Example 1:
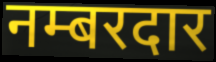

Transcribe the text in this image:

नम्बरदार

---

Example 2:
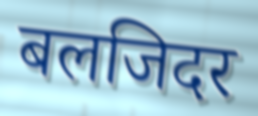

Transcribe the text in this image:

बलजिदर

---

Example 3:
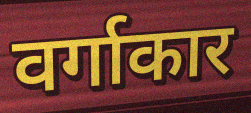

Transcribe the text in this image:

वर्गाकार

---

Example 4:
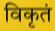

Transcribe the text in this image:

विकृतं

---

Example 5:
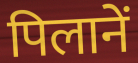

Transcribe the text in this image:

पिलानें